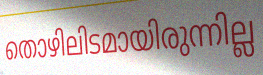
തൊഴിലിടമായിരുന്നില്ല